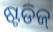
ଷ୍ଟଡିଜ୍